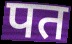
पत